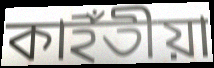
কাইঁতীয়া